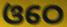
ଓଠେ